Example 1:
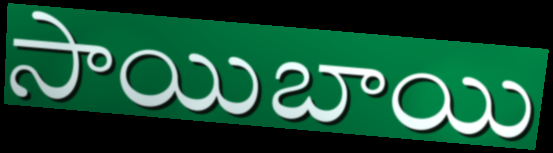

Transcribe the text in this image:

సాయిబాయి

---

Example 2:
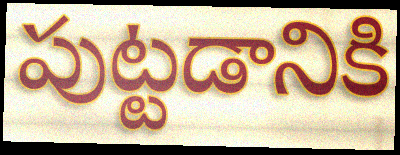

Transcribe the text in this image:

పుట్టడానికి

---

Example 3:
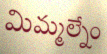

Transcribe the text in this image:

మిమ్మల్నేం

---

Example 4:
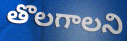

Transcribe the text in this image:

తొలగాలని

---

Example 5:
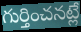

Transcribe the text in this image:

గుర్తించనట్లే